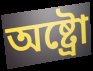
অষ্ট্ৰো